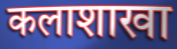
कलाशाखा